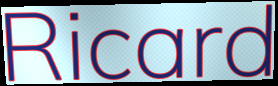
Ricard